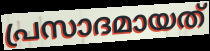
പ്രസാദമായത്